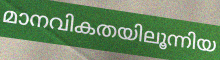
മാനവികതയിലൂന്നിയ